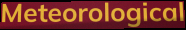
Meteorological